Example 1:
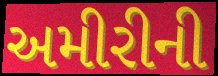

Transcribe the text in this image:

અમીરીની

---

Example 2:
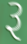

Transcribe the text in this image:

રૂ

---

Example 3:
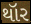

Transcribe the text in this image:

થૉર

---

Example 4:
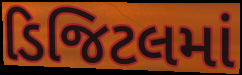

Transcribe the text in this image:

ડિજિટલમાં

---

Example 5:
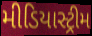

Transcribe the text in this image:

મીડિયાસ્ટ્રીમ